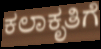
ಕಲಾಕೃತಿಗೆ